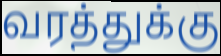
வரத்துக்கு